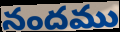
నందము